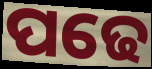
ପଢେ